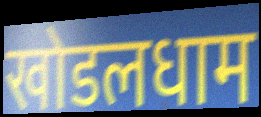
खोडलधाम